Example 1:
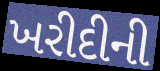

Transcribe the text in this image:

ખરીદીની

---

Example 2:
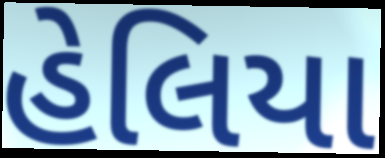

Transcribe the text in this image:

હેલિયા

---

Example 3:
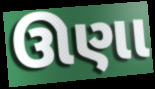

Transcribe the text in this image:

ઊણા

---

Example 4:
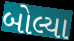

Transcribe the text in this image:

બોલ્યા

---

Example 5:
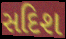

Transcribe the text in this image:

સદિશ